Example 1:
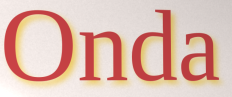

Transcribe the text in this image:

Onda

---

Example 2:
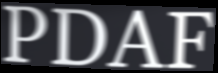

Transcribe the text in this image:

PDAF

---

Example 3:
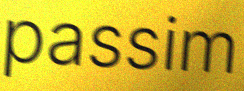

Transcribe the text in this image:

passim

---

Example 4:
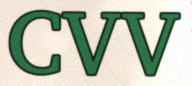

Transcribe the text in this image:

CVV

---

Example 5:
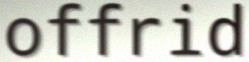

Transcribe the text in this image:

offrid